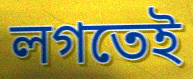
লগতেই